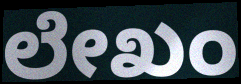
ಲೇಖಂ